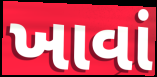
ખાવાં